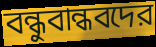
বন্ধুবান্ধবদের